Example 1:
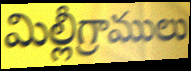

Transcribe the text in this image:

మిల్లీగ్రాములు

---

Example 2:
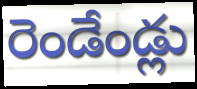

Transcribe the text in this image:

రెండేండ్లు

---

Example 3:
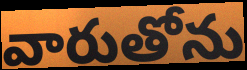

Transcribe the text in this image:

వారుతోను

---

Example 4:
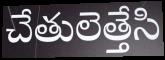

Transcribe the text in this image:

చేతులెత్తేసి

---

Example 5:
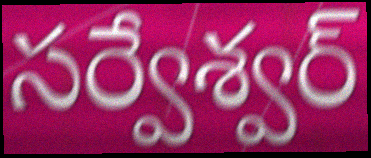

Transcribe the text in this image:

సర్వేశ్వర్